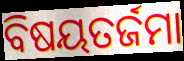
ବିଷୟତର୍ଜମା